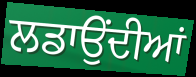
ਲਡਾਉਂਦੀਆਂ